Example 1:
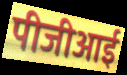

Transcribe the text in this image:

पीजीआई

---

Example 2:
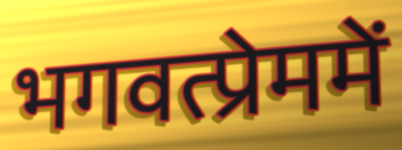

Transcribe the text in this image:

भगवत्प्रेममें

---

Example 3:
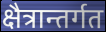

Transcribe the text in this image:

क्षैत्रान्तर्गत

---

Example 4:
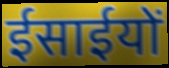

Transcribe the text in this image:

ईसाईयों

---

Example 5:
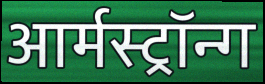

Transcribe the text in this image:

आर्मस्ट्रॉन्ग